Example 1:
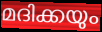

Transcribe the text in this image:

മദിക്കയും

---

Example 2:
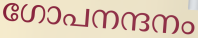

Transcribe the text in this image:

ഗോപനന്ദനം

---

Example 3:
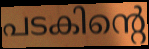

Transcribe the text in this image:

പടകിന്റെ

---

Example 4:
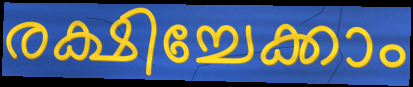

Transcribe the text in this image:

രക്ഷിച്ചേക്കാം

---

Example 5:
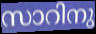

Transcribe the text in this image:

സാറിനു